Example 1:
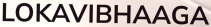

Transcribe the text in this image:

LOKAVIBHAAGA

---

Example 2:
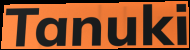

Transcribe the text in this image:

Tanuki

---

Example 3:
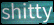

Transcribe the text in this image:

shitty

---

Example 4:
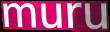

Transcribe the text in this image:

muru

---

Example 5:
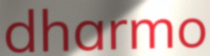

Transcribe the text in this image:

dharmo